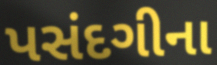
પસંદગીના